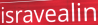
isravealin